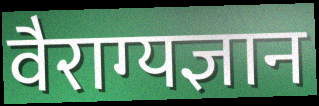
वैराग्यज्ञान